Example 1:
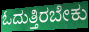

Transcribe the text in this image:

ಓದುತ್ತಿರಬೇಕು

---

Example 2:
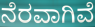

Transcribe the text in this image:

ನೆರವಾಗಿವೆ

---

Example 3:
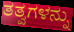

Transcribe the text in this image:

ತತ್ವಗಳನ್ನು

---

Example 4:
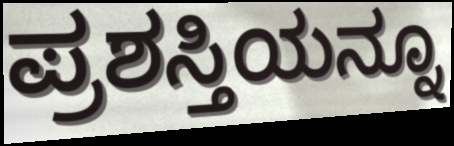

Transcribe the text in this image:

ಪ್ರಶಸ್ತಿಯನ್ನೂ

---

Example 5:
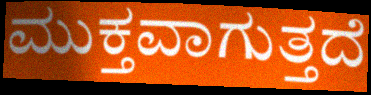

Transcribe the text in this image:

ಮುಕ್ತವಾಗುತ್ತದೆ